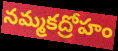
నమ్మకద్రోహం